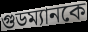
গুডম্যানকে